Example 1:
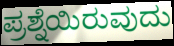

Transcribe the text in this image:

ಪ್ರಶ್ನೆಯಿರುವುದು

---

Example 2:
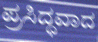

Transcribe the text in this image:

ಪ್ರಸಿದ್ಧವಾದ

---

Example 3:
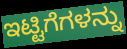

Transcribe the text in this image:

ಇಟ್ಟಿಗೆಗಳನ್ನು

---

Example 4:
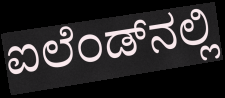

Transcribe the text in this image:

ಐಲೆಂಡ್‌ನಲ್ಲಿ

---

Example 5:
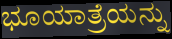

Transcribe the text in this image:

ಭೂಯಾತ್ರೆಯನ್ನು